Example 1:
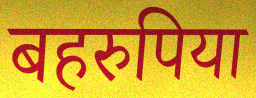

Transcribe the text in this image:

बहरुपिया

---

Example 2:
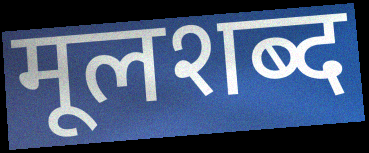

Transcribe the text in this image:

मूलशब्द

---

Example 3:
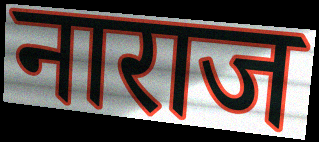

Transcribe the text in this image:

नाराज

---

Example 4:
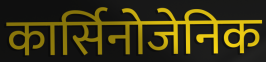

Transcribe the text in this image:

कार्सिनोजेनिक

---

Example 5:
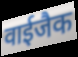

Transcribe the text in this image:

वाईजैक